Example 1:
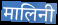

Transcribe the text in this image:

मालिनी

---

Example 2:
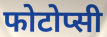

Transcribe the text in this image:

फोटोप्सी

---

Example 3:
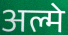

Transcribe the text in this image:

अल्मे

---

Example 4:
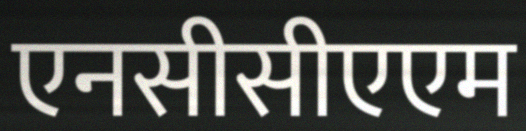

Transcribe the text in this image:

एनसीसीएएम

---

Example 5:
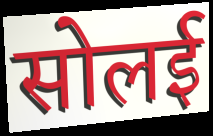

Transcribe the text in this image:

सोलई